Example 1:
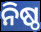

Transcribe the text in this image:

ନିଷ୍ଠ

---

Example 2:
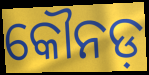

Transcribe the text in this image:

କୌନଡ଼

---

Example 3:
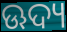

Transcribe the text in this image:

ଊଦ୍ୟ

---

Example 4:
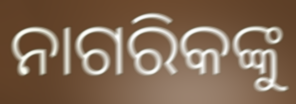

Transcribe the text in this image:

ନାଗରିକଙ୍କୁ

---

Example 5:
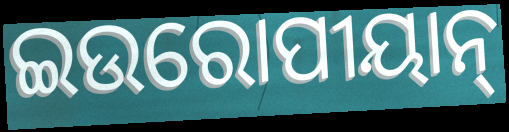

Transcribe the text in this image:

ଇଉରୋପୀୟାନ୍